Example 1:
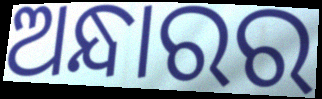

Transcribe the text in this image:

ଅନ୍ଧାରର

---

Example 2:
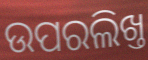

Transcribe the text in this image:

ଉପରଲିଖ୍ତ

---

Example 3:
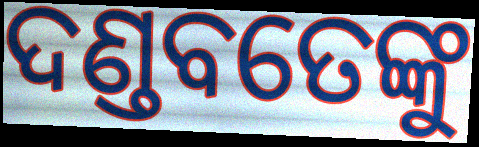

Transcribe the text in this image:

ଦଣ୍ଡବତେଙ୍କୁ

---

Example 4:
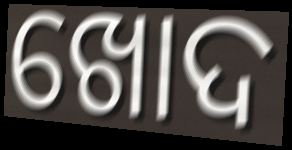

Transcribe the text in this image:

ଖୋଦ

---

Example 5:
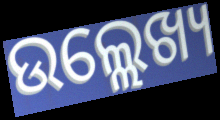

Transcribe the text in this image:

ଉଲ୍ଲେଖ୍ୟ